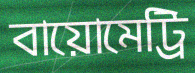
বায়োমেট্রি